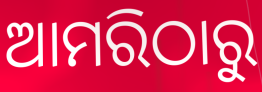
ଆମରିଠାରୁ